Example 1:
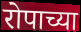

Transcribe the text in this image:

रोपाच्या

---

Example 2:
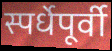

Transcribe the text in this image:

स्पर्धेपूर्वी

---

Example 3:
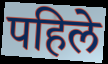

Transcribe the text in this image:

पहिले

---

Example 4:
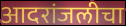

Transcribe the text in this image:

आदरांजलीचा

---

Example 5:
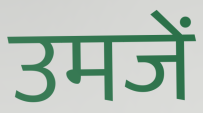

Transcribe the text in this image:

उमजें